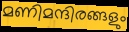
മണിമന്ദിരങ്ങളും